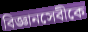
বিজ্ঞানসেবীকে